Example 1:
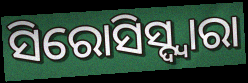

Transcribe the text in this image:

ସିରୋସିସ୍ଦ୍ୱାରା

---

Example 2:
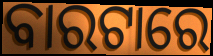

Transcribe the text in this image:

ବାରଟାରେ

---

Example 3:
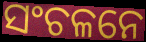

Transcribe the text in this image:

ସଂଚଳନେ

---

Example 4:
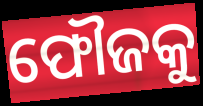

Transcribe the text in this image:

ଫୌଜକୁ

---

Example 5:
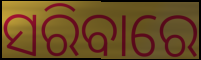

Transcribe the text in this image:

ସରିବାରେ